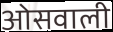
ओसवाली